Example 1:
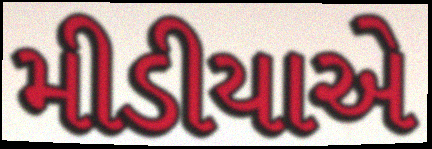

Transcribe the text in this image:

મીડીયાએ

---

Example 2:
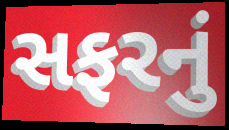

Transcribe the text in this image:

સફરનું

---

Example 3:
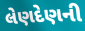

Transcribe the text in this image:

લેણદેણની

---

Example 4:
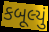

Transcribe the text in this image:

કબૂલ્યું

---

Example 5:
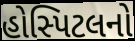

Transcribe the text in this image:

હોસ્પિટલનો